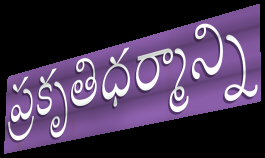
ప్రకృతిధర్మాన్ని